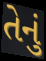
તેનું